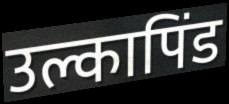
उल्कापिंड